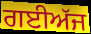
ਗਈਅੱਜ